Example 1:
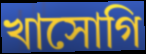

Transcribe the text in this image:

খাসোগি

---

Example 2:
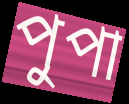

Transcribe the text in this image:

পুপা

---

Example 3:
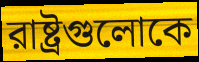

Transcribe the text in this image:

রাষ্ট্রগুলোকে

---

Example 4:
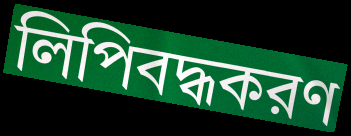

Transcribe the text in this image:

লিপিবদ্ধকরণ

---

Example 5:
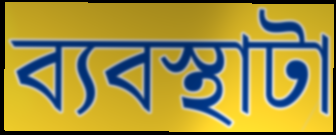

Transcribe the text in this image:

ব্যবস্থাটা